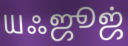
யஃஜூஜ்